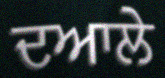
ਦਆਲੇ